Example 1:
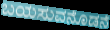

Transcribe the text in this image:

ಬಯಸುವನೊಡನೆ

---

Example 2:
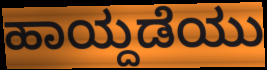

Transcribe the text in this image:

ಹಾಯ್ದಡೆಯು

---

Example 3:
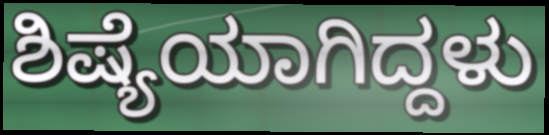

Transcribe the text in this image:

ಶಿಷ್ಯೆಯಾಗಿದ್ದಳು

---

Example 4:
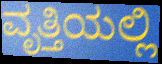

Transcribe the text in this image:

ವೃತ್ತಿಯಲ್ಲಿ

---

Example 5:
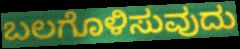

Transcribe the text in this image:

ಬಲಗೊಳಿಸುವುದು